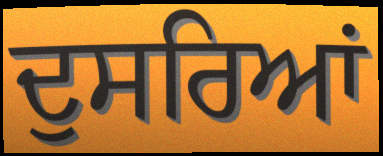
ਦੁਸਰਿਆਂ